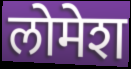
लोमेश